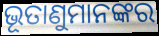
ଭୂତାଣୁମାନଙ୍କର